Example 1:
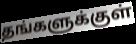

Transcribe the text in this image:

தங்களுக்குள்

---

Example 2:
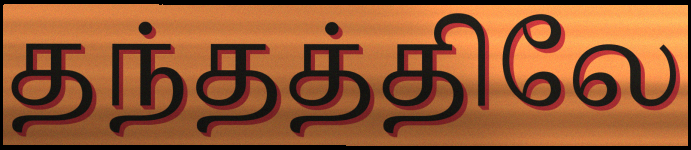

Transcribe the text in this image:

தந்தத்திலே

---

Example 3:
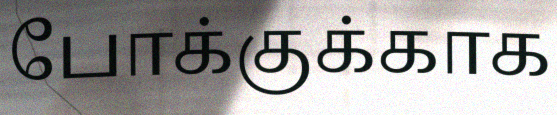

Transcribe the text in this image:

போக்குக்காக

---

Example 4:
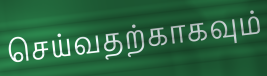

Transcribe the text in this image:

செய்வதற்காகவும்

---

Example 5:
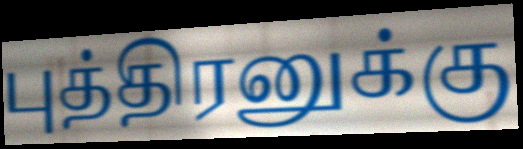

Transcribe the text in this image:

புத்திரனுக்கு